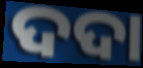
ଦଦା